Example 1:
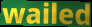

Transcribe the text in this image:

wailed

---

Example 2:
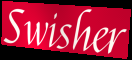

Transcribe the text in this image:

Swisher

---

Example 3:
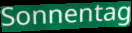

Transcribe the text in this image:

Sonnentag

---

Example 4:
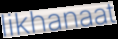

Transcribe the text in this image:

likhanaat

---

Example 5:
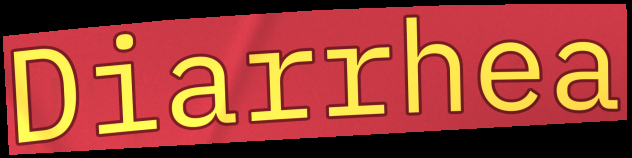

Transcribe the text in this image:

Diarrhea